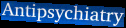
Antipsychiatry